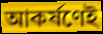
আকর্ষণেই